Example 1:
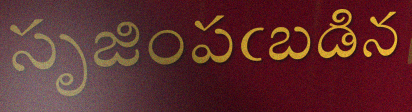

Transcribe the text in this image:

సృజింపఁబడిన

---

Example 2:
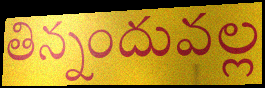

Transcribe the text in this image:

తిన్నందువల్ల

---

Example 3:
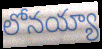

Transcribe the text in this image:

లోనయ్యా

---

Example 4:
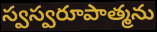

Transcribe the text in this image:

స్వస్వరూపాత్మను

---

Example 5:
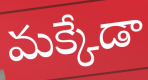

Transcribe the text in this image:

మక్కేడా